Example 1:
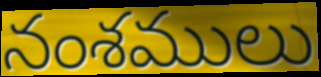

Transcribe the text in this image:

నంశములు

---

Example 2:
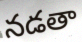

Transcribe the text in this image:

నడతా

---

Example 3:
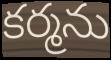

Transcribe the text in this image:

కర్మను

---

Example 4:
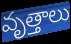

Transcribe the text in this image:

వృత్తాలు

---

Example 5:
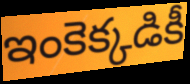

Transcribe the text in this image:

ఇంకెక్కడికీ